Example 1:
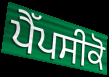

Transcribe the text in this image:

ਪੈੱਪਸੀਕੋ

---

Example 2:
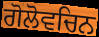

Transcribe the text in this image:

ਗੋਲੋਵਚਿਨ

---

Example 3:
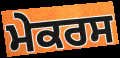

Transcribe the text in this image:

ਮੇਕਰਸ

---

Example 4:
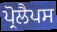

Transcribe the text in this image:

ਪ੍ਰੋਲੈਪਸ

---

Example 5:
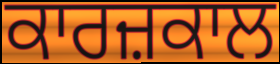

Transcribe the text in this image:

ਕਾਰਜ਼ਕਾਲ